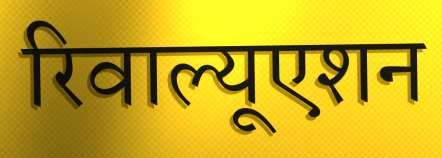
रिवाल्यूएशन